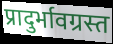
प्रादुर्भावग्रस्त